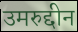
उमरुद्दीन